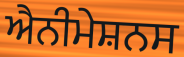
ਐਨੀਮੇਸ਼ਨਸ